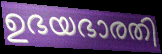
ഉഭയഭാരതി